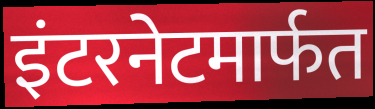
इंटरनेटमार्फत